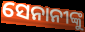
ସେନାନୀଙ୍କୁ